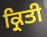
ਕ੍ਰਿਤੀ